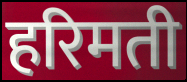
हरिमती